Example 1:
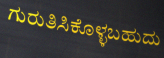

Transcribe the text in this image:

ಗುರುತಿಸಿಕೊಳ್ಳಬಹುದು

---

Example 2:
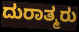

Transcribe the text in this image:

ದುರಾತ್ಮರು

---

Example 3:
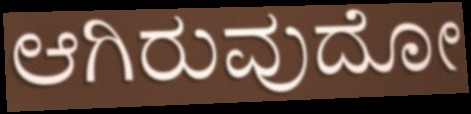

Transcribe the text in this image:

ಆಗಿರುವುದೋ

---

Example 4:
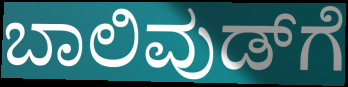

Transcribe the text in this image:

ಬಾಲಿವುಡ್‌ಗೆ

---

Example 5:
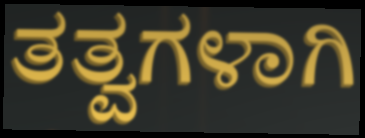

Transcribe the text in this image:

ತತ್ವಗಳಾಗಿ